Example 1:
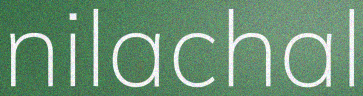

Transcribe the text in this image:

nilachal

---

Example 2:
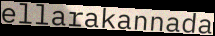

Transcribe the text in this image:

ellarakannada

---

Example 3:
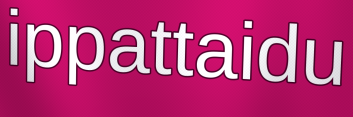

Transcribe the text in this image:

ippattaidu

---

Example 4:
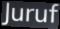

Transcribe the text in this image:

Juruf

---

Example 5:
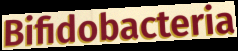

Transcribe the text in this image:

Bifidobacteria